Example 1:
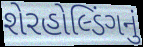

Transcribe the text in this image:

શેરહોલ્ડિંગનું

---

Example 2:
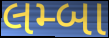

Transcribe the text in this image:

લમ્બા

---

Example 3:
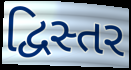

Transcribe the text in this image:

દ્વિસ્તર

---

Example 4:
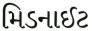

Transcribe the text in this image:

મિડનાઈટ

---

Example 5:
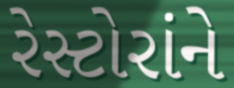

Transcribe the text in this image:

રેસ્ટોરાંને